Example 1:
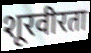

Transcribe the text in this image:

शूरवीरता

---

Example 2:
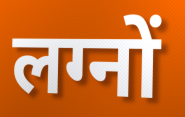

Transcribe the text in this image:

लग्नों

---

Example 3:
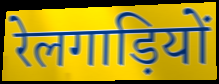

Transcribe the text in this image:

रेलगाड़ियों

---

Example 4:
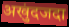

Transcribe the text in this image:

अखुंदजदा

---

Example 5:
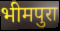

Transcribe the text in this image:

भीमपुरा